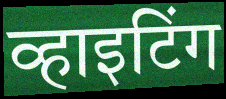
व्हाइटिंग